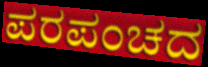
ಪರಪಂಚದ